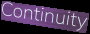
Continuity